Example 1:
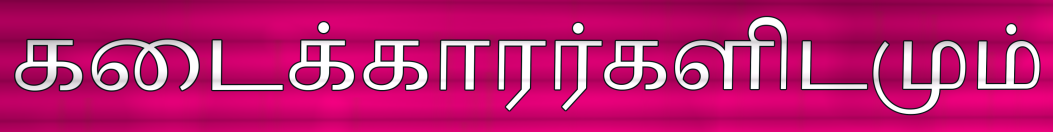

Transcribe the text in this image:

கடைக்காரர்களிடமும்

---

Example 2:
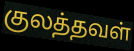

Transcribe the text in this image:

குலத்தவள்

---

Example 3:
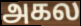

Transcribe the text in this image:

அகல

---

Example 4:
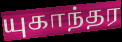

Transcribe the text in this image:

யுகாந்தர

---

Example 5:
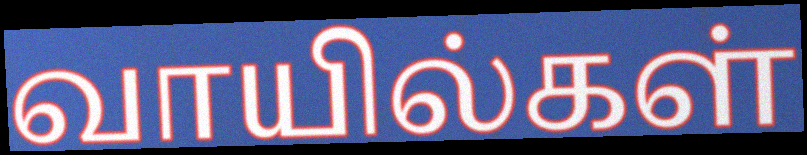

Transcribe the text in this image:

வாயில்கள்